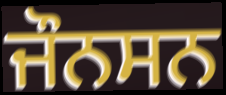
ਜੌਨਸਨ